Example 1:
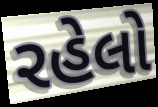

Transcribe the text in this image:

રહેલો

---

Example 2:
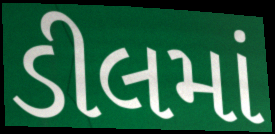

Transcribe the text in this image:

ડીલમાં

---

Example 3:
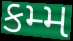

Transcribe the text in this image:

કમ્મ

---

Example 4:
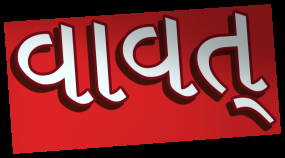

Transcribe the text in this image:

વાવત્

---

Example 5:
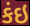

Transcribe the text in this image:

કંઇ